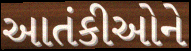
આતંકીઓને